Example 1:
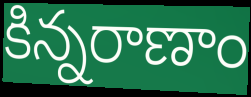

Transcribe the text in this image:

కిన్నరాణాం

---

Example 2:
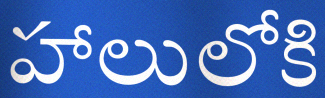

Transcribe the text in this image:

హాలులోకి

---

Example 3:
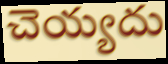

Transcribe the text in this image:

చెయ్యదు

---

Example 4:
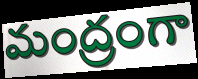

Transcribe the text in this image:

మంద్రంగా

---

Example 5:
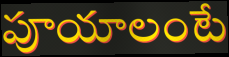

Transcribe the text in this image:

పూయాలంటే